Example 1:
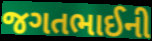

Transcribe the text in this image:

જગતભાઈની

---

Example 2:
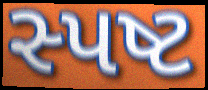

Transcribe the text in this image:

સ્પષ્ટ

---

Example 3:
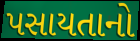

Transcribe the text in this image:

પસાયતાનો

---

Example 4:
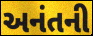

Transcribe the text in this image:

અનંતની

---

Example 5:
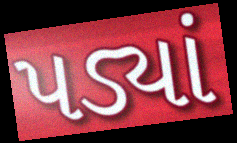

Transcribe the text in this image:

પડ્યાં